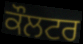
ਕੌਲਟਰ